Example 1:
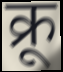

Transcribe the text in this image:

क्रू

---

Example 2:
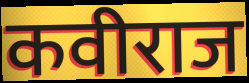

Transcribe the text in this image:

कवीराज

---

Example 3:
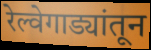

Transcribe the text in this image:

रेल्वेगाड्यांतून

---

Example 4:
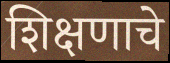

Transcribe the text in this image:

शिक्षणाचे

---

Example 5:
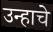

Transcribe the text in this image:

उन्हाचे